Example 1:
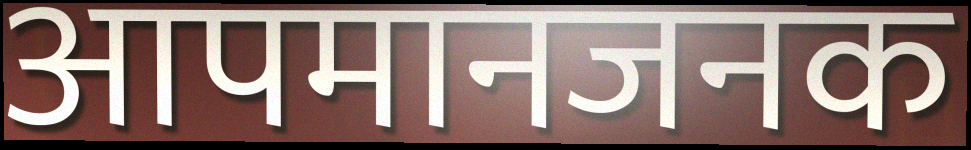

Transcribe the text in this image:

आपमानजनक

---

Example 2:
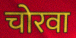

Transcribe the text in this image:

चोरवा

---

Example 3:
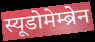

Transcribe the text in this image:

स्यूडोमेम्ब्रेन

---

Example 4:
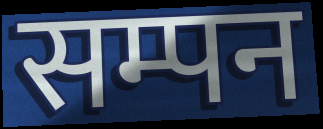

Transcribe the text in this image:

सम्पन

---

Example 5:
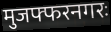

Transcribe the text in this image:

मुजफ्फरनगरः